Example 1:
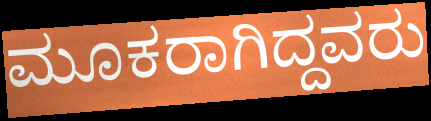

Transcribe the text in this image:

ಮೂಕರಾಗಿದ್ದವರು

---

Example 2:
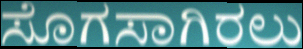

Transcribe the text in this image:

ಸೊಗಸಾಗಿರಲು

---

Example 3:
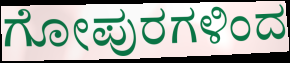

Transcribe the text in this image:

ಗೋಪುರಗಳಿಂದ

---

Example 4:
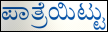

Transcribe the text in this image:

ಪಾತ್ರೆಯಿಟ್ಟು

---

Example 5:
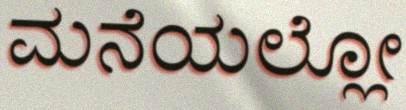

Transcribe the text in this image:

ಮನೆಯಲ್ಲೋ